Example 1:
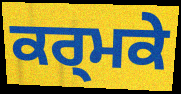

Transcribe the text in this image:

ਕਰ੍ਮਕੇ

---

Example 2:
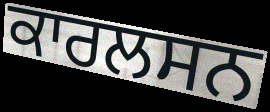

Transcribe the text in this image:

ਕਾਰਲਸਨ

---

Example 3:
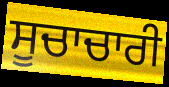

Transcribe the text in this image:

ਸੂਚਾਚਾਰੀ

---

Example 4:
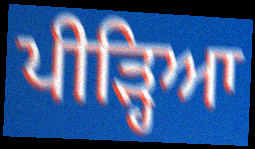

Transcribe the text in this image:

ਪੀੜ੍ਹਿਆ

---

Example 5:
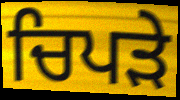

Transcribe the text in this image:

ਚਿਪੜੇ